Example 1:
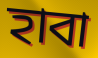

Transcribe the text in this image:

হাবা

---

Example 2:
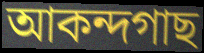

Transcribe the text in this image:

আকন্দগাছ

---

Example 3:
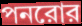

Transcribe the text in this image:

পনরোর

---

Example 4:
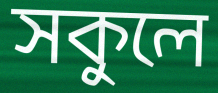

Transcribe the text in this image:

সকুলে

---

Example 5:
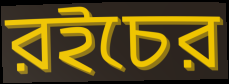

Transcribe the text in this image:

রইচের